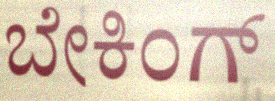
ಬೇಕಿಂಗ್